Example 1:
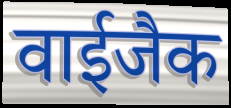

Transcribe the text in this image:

वाईजैक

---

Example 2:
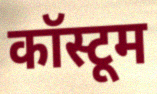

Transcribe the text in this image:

कॉस्टूम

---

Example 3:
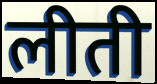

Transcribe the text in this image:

लीती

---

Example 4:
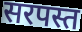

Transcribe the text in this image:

सरपस्त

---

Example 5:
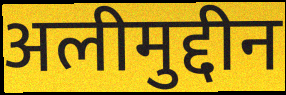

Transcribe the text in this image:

अलीमुद्दीन